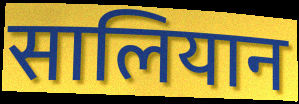
सालियान